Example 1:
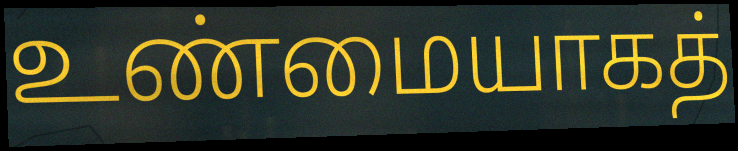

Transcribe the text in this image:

உண்மையாகத்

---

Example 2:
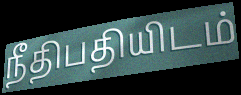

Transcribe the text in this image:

நீதிபதியிடம்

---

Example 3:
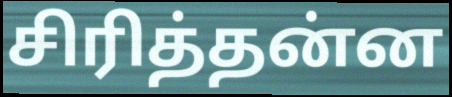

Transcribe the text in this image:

சிரித்தன்ன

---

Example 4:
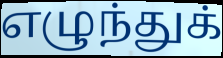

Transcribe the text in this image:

எழுந்துக்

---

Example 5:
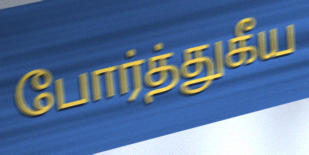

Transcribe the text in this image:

போர்த்துகீய